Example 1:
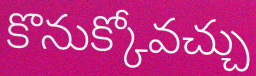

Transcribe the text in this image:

కొనుక్కోవచ్చు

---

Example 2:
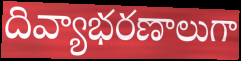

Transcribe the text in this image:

దివ్యాభరణాలుగా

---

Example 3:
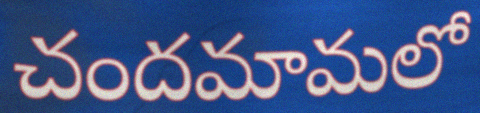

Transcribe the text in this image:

చందమామలో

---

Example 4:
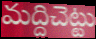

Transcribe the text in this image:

మద్దిచెట్టు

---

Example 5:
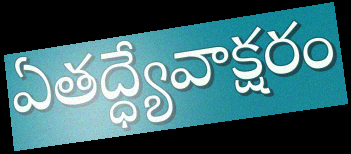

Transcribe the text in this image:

ఏతద్ధ్యేవాక్షరం